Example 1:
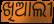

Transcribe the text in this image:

ଖିଆଲୀ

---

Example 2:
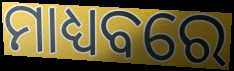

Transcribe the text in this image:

ମାଧ୍ୟବରେ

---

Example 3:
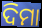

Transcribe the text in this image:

ଦିମା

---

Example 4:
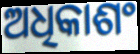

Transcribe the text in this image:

ଅଧିକାଶଂ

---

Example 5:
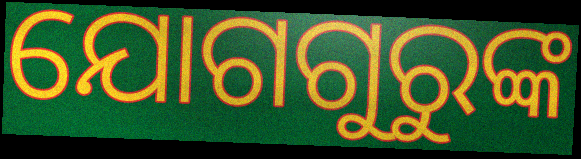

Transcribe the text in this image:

ଯୋଗଗୁରୁଙ୍କ